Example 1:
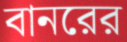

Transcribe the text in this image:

বানরের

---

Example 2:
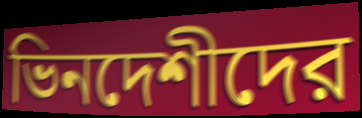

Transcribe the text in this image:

ভিনদেশীদের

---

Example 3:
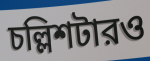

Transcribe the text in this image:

চল্লিশটারও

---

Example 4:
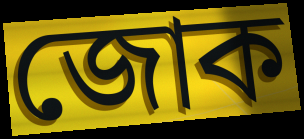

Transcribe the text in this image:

জোক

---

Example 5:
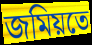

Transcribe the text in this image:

জমিয়তে